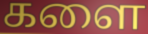
களை